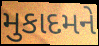
મુકાદમને